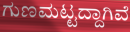
ಗುಣಮಟ್ಟದ್ದಾಗಿವೆ